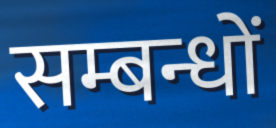
सम्बन्धों